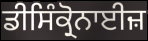
ਡੀਸਿੰਕ੍ਰੋਨਾਈਜ਼